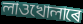
লাওখোলাৰে